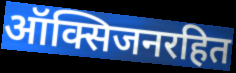
ऑक्सिजनरहित